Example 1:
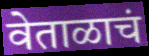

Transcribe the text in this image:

वेताळाचं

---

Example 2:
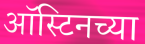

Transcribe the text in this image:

ऑस्टिनच्या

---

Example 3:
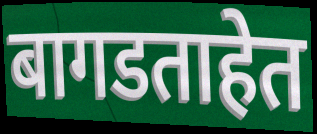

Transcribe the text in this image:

बागडताहेत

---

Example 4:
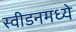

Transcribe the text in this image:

स्वीडनमध्ये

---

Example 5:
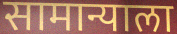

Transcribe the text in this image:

सामान्याला